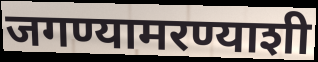
जगण्यामरण्याशी